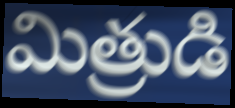
మిత్రుడి